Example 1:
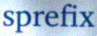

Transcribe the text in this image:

sprefix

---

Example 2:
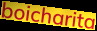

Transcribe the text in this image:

boicharita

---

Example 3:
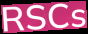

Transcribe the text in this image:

RSCs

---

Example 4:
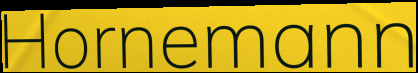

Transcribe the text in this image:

Hornemann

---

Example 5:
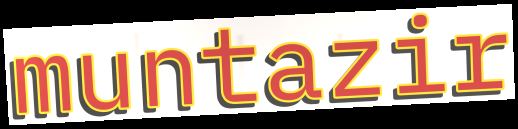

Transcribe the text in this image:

muntazir